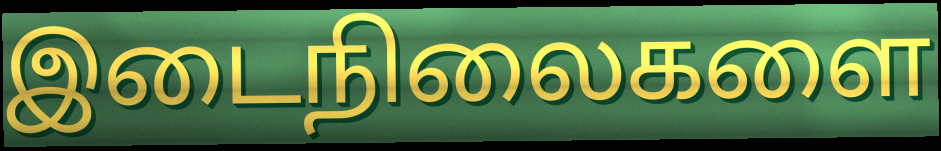
இடைநிலைகளை